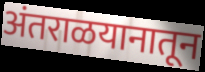
अंतराळयानातून